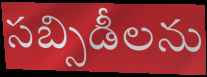
సబ్సిడీలను